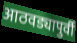
आठवड्यापुर्वी